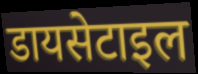
डायसेटाइल